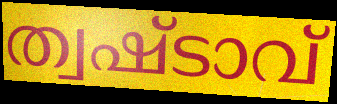
ത്വഷ്ടാവ്